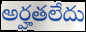
అర్హతలేదు